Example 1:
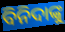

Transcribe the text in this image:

ବିନିଦାଙ୍କୁ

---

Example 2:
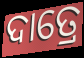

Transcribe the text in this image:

ଦାତ୍ରେ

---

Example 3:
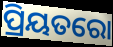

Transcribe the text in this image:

ପ୍ରିୟତରୋ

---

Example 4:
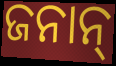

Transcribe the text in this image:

ଜନାନ୍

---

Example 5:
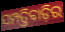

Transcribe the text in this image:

ସମ୍ପତ୍ତିବାଡ଼ିର